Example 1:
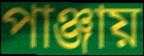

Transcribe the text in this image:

পাঞ্জায়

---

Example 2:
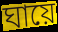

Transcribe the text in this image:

ঘায়ে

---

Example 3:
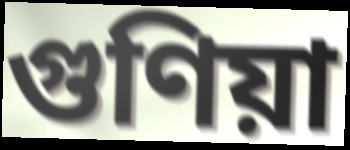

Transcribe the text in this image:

গুণিয়া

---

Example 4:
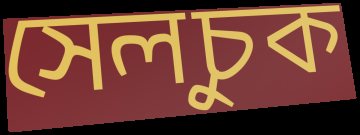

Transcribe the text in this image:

সেলচুক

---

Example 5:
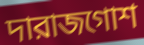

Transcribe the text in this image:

দারাজগোশ